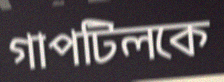
গাপটিলকে